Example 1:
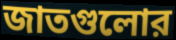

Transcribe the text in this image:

জাতগুলোর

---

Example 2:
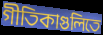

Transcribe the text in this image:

গীতিকাগুলিতে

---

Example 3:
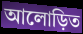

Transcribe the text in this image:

আলোড়িত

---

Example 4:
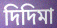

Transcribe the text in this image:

দিদিমা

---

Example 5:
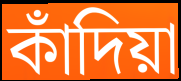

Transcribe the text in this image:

কাঁদিয়া